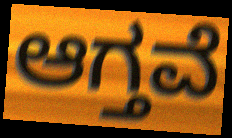
ಆಗ್ತವೆ